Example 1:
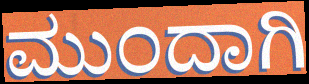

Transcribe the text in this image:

ಮುಂದಾಗಿ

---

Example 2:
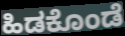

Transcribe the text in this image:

ಹಿಡಕೊಂಡೆ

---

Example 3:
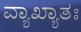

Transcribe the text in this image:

ವ್ಯಾಖ್ಯಾತಃ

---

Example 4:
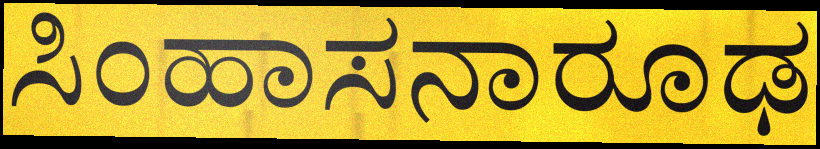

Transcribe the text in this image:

ಸಿಂಹಾಸನಾರೂಢ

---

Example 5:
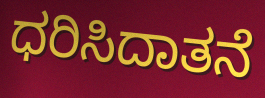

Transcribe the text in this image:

ಧರಿಸಿದಾತನೆ